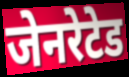
जेनरेटेड